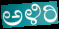
ಅಳಿರಿ